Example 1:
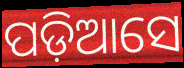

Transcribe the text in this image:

ପଡ଼ିଆସେ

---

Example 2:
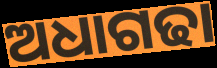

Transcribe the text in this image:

ଅଧାଗଢା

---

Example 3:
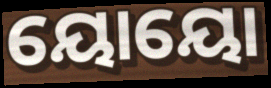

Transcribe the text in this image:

ୟୋୟୋ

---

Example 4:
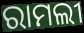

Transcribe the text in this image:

ରାମଲୀ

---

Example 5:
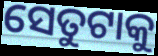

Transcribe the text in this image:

ସେତୁଟାକୁ